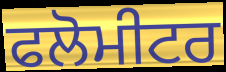
ਫਲੋਮੀਟਰ